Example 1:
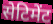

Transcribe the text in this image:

सेटिमेंट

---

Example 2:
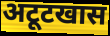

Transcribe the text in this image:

अटूटखास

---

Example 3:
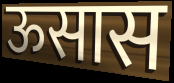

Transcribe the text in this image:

ऊसास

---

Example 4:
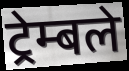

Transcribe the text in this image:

ट्रेम्बले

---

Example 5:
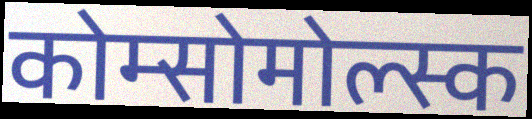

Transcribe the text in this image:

कोम्सोमोल्स्क